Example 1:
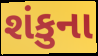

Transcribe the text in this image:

શંકુના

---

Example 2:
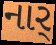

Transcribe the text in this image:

નાર્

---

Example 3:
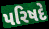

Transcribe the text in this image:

પરિષદે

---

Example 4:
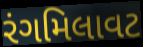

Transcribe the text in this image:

રંગમિલાવટ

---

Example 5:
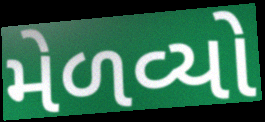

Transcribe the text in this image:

મેળવ્યો